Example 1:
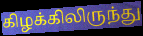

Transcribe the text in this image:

கிழக்கிலிருந்து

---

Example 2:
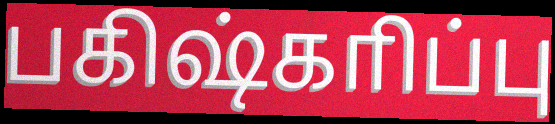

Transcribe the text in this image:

பகிஷ்கரிப்பு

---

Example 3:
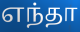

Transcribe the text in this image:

எந்தா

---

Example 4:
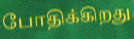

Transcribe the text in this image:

போதிக்கிறது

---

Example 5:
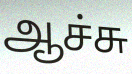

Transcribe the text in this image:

ஆச்சு